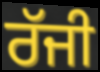
ਰੱਜੀ